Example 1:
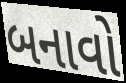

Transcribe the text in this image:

બનાવો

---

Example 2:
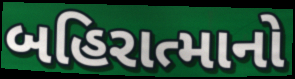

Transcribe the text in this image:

બહિરાત્માનો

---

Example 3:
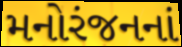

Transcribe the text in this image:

મનોરંજનનાં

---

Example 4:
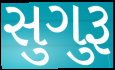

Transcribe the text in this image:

સુગુરૂ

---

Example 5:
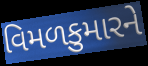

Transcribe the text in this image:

વિમળકુમારને